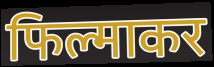
फिल्माकर